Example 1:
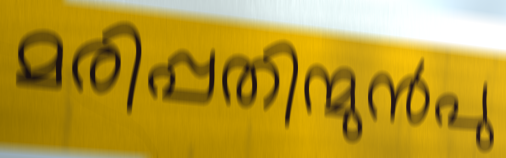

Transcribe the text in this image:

മരിപ്പതിന്മുൻപു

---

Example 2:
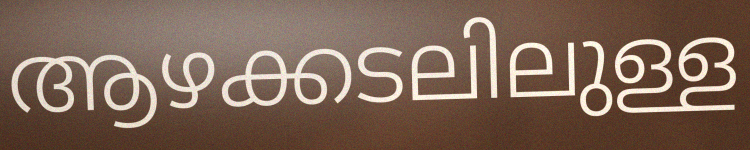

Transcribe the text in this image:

ആഴക്കടലിലുള്ള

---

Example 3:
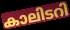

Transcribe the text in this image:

കാലിടറി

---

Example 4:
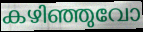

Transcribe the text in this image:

കഴിഞ്ഞുവോ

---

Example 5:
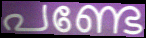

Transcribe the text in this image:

പണ്ടേ